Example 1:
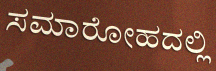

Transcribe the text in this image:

ಸಮಾರೋಹದಲ್ಲಿ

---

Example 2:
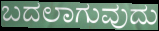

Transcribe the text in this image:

ಬದಲಾಗುವುದು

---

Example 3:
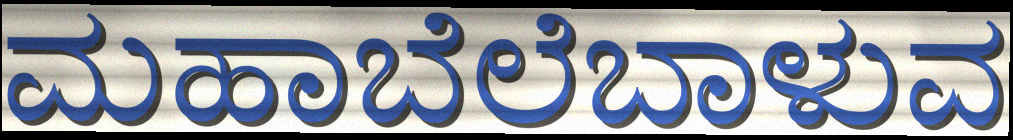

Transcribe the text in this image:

ಮಹಾಬೆಲೆಬಾಳುವ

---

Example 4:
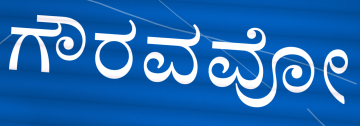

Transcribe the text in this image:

ಗೌರವವೋ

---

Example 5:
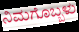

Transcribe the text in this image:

ನಿಮಗೊಬ್ಬಳು